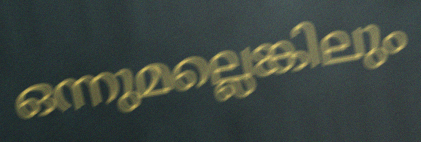
ഒന്നുമല്ലെങ്കിലും